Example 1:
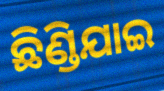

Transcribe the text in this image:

ଛିଣ୍ଡିଯାଇ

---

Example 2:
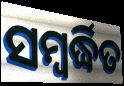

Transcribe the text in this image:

ସମ୍ବର୍ଦ୍ଧିତ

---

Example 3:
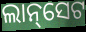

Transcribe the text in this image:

ଲାନ୍‌ସେଟ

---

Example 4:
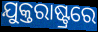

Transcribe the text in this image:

ଯୁକ୍ତରାଷ୍ଟ୍ରରେ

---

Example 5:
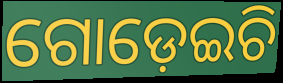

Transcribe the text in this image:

ଗୋଡ଼େଇଚି